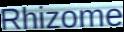
Rhizome